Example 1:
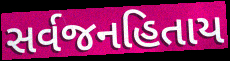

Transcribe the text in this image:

સર્વજનહિતાય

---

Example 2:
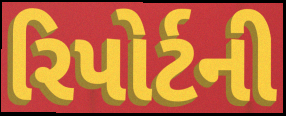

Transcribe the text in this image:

રિપોર્ટની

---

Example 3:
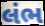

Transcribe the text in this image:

લંભ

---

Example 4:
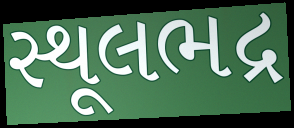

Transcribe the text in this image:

સ્થૂલભદ્ર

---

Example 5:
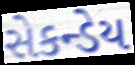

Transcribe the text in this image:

સેકન્ડેય